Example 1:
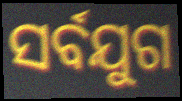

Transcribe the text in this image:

ସର୍ବଯୁଗ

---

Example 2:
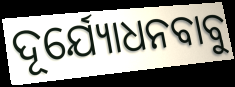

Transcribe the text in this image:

ଦୂର୍ଯ୍ୟୋଧନବାବୁ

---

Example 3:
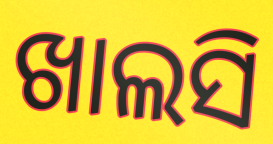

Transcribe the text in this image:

ଖାଲସି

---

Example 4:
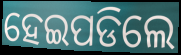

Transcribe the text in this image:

ହେଇପଡିଲେ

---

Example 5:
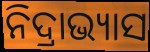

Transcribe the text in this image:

ନିଦ୍ରାଭ୍ୟାସ